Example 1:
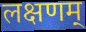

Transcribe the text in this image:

लक्षणम्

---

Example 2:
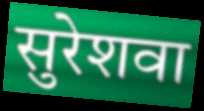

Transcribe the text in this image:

सुरेशवा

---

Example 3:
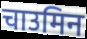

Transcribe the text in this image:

चाउमिन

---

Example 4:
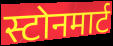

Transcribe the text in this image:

स्टोनमार्ट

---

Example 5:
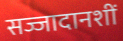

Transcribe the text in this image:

सज्जादानशीं